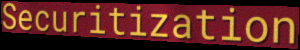
Securitization